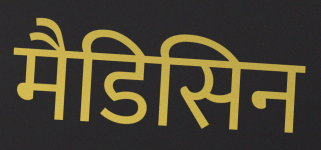
मैडिसिन